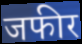
जफीर